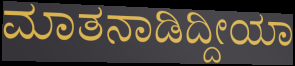
ಮಾತನಾಡಿದ್ದೀಯಾ